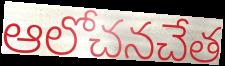
ఆలోచనచేత